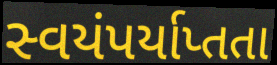
સ્વયંપર્યાપ્તતા